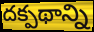
దక్పథాన్ని